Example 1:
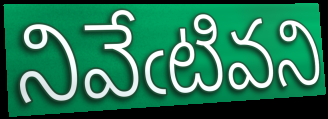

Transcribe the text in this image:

నివేఁటివని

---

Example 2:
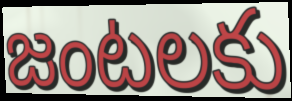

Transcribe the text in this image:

జంటలకు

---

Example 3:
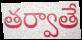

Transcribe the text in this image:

తర్వాతే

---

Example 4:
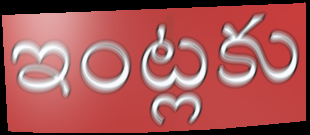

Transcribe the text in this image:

ఇంట్లకు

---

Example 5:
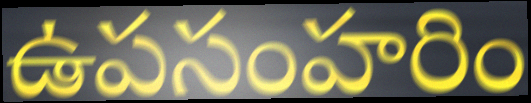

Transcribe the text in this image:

ఉపసంహరిం